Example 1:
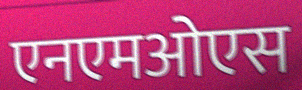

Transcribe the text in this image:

एनएमओएस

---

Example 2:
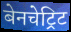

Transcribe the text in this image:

बेनचेट्रिट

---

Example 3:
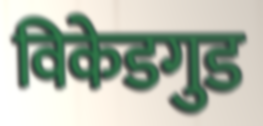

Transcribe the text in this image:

विकेडगुड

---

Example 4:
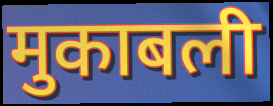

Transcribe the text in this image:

मुकाबली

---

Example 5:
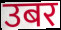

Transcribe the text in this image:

उबर